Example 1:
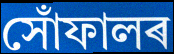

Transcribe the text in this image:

সোঁফালৰ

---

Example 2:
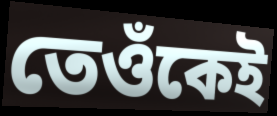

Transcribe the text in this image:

তেওঁকেই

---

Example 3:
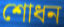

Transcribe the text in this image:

শোধন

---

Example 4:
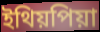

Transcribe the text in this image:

ইথিয়পিয়া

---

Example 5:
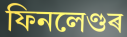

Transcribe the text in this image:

ফিনলেণ্ডৰ